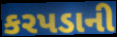
કરપડાની